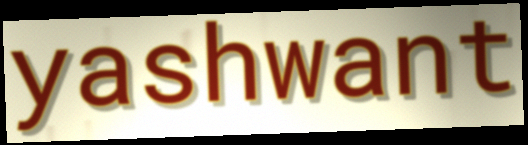
yashwant